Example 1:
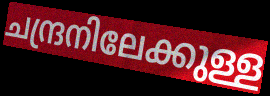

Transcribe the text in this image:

ചന്ദ്രനിലേക്കുള്ള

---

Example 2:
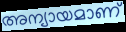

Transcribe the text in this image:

അന്യായമാണ്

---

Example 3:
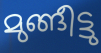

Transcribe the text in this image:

മുങ്ങീട്ടു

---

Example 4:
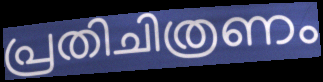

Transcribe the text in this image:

പ്രതിചിത്രണം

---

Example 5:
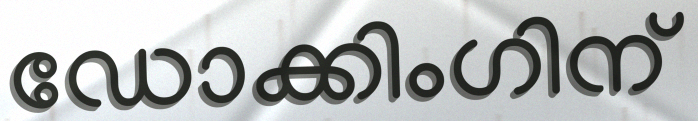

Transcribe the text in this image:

ഡോക്കിംഗിന്